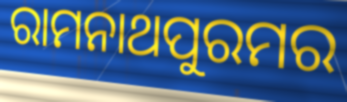
ରାମନାଥପୁରମର